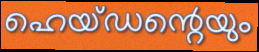
ഹെയ്ഡന്റെയും